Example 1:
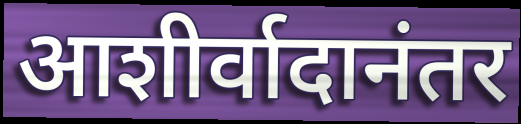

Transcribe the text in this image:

आशीर्वादानंतर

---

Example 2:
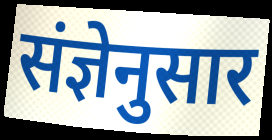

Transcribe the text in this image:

संज्ञेनुसार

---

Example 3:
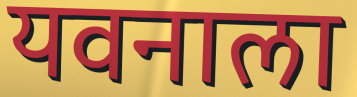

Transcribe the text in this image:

यवनाला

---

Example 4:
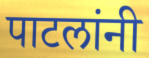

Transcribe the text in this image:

पाटलांनी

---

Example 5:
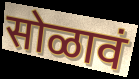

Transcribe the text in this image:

सोळावं